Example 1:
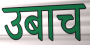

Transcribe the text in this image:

उबाच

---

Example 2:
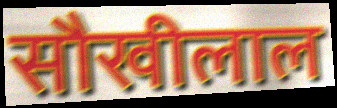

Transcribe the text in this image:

सौखीलाल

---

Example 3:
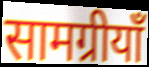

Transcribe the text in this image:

सामग्रीयाँ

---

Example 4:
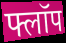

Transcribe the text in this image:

फ्लॉप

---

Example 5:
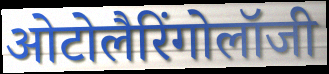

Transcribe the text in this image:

ओटोलैरिंगोलॉजी